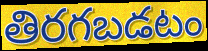
తిరగబడటం